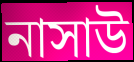
নাসাউ